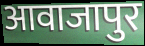
आवाजापुर